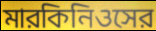
মারকিনিওসের